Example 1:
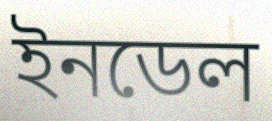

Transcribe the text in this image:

ইনডেল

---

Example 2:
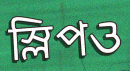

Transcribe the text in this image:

স্লিপও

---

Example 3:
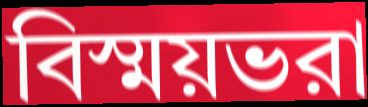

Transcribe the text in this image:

বিস্ময়ভরা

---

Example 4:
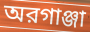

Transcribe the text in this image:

অরগাঞ্জা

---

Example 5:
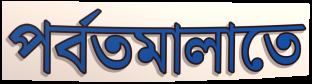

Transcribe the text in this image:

পর্বতমালাতে